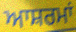
ਆਸ਼ਰਮਾਂ